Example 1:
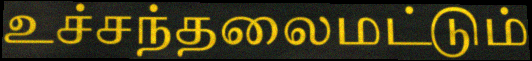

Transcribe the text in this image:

உச்சந்தலைமட்டும்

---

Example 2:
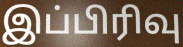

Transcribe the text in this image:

இப்பிரிவு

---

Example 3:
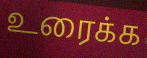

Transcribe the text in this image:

உரைக்க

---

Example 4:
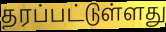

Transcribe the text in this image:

தரப்பட்டுள்ளது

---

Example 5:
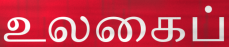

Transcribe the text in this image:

உலகைப்